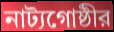
নাট্যগোষ্ঠীর